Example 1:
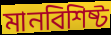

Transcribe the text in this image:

মানবিশিষ্ট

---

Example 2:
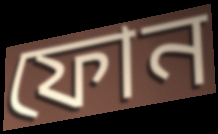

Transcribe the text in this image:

ফোন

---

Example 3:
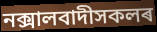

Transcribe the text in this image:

নক্সালবাদীসকলৰ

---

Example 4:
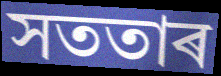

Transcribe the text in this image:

সততাৰ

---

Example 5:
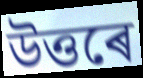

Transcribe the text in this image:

উত্তৰে